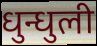
धुन्धुली